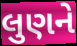
લુણને